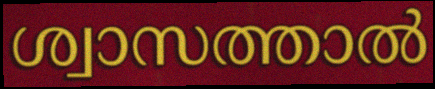
ശ്വാസത്താൽ